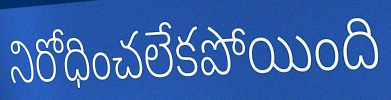
నిరోధించలేకపోయింది